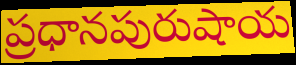
ప్రధానపురుషాయ